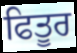
ਫਿਤੂਰ